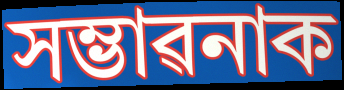
সম্ভাৱনাক